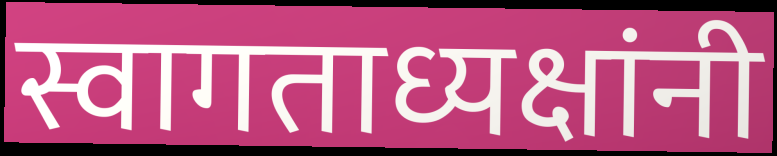
स्वागताध्यक्षांनी